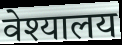
वेश्यालय